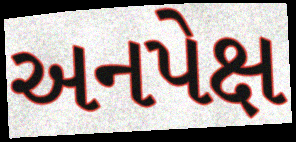
અનપેક્ષ